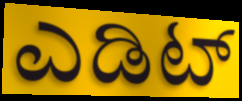
ಎಡಿಟ್